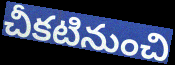
చీకటినుంచి